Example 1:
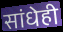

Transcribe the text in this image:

सांधेही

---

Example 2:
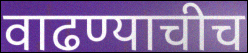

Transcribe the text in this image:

वाढण्याचीच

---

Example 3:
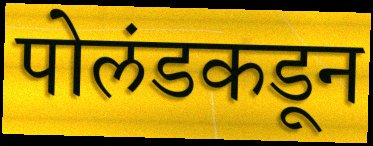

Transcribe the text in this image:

पोलंडकडून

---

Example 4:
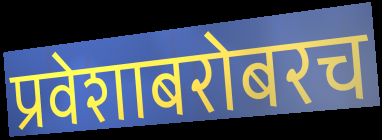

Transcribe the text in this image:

प्रवेशाबरोबरच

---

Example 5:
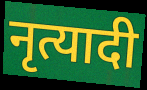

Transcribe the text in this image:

नृत्यादी